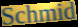
Schmid